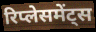
रिप्लेसमेंट्स